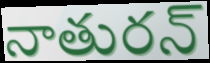
నాతురన్